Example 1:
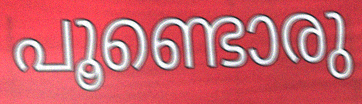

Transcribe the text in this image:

പൂണ്ടൊരു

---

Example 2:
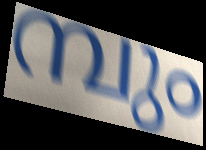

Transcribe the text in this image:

മ്പും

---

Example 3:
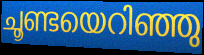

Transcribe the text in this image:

ചൂണ്ടയെറിഞ്ഞു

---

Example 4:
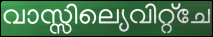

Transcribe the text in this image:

വാസ്സില്യെവിറ്റ്ചേ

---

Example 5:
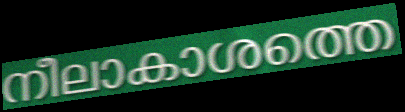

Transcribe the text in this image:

നീലാകാശത്തെ